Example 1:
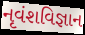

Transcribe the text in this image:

નૃવંશવિજ્ઞાન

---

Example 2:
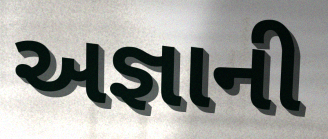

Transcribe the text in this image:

અજ્ઞાની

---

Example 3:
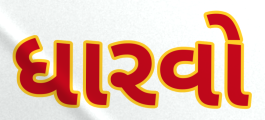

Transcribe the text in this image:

ધારવો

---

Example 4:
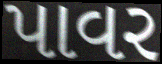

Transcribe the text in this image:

પાવર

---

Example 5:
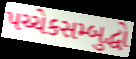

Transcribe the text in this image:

પચ્ચેકસમ્બુદ્ધો